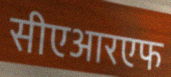
सीएआरएफ